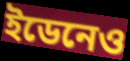
ইডেনেও